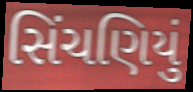
સિંચણિયું